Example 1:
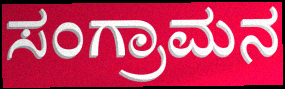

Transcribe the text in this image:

ಸಂಗ್ರಾಮನ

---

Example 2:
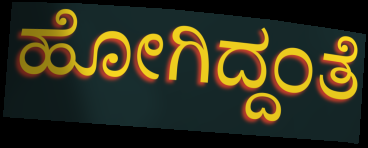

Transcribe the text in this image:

ಹೋಗಿದ್ದಂತೆ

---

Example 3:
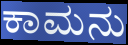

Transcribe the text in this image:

ಕಾಮನು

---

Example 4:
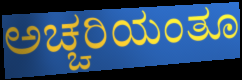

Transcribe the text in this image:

ಅಚ್ಚರಿಯಂತೂ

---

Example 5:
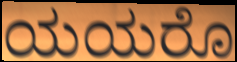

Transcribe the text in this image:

ಯಯರೊ